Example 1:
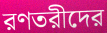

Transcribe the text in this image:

রণতরীদের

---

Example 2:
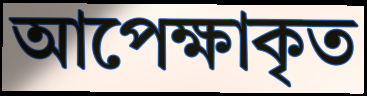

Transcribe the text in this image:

আপেক্ষাকৃত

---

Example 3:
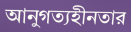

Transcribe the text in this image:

আনুগত্যহীনতার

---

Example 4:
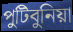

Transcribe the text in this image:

পুটিবুনিয়া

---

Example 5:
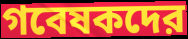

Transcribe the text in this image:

গবেষকদের